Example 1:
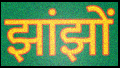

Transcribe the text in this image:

झांझों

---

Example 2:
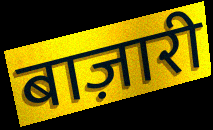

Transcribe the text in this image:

बाज़ारी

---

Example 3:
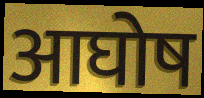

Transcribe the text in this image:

आघोष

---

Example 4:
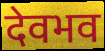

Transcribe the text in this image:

देवभव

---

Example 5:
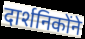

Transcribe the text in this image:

दार्शनिकोंने